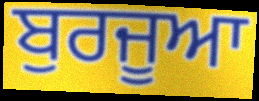
ਬੁਰਜੂਆ